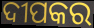
ଦୀପକର